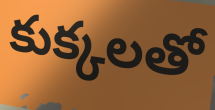
కుక్కలతో